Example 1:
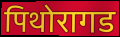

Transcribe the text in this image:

पिथोरागड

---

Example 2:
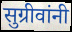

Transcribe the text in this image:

सुग्रीवांनी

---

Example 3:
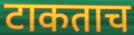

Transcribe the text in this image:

टाकताच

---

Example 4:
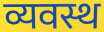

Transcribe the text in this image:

व्यवस्थ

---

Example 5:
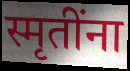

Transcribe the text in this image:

स्मृतींना